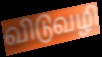
விடுவழி